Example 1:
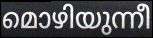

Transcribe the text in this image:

മൊഴിയുന്നീ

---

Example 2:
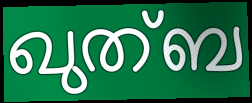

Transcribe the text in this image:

ഖുത്ബ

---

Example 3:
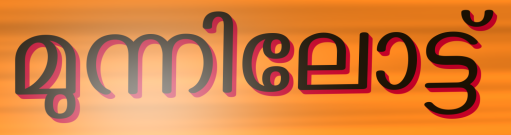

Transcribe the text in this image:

മുന്നിലോട്ട്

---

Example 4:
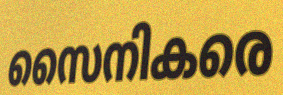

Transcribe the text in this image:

സൈനികരെ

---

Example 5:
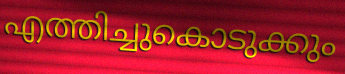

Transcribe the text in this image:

എത്തിച്ചുകൊടുക്കും